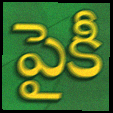
పైకీ